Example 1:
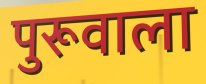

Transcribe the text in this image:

पुरूवाला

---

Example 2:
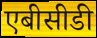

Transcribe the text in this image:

एबीसीडी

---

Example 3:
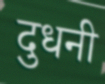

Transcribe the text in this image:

दुधनी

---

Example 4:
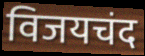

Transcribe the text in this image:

विजयचंद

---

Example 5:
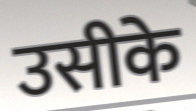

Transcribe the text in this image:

उसीके